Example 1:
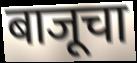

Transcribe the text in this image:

बाजूचा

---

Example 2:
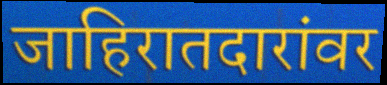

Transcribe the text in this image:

जाहिरातदारांवर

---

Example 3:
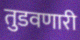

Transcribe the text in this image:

तुडवणारी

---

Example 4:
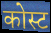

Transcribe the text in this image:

कोस्ट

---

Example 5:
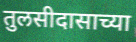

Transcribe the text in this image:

तुलसीदासाच्या